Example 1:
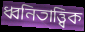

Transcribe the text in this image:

ধ্বনিতাত্ত্বিক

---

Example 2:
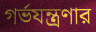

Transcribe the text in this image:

গর্ভযন্ত্রণার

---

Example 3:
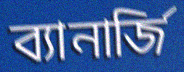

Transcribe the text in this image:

ব্যানার্জি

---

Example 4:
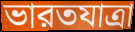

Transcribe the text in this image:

ভারতযাত্রা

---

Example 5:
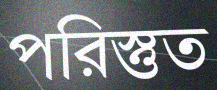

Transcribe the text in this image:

পরিস্তুত